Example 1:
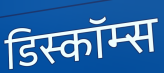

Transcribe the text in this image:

डिस्कॉम्स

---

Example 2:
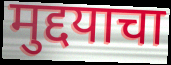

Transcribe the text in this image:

मुद्दयाचा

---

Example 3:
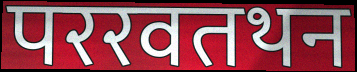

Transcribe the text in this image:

पररवतथन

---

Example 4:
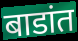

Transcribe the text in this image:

बाडांत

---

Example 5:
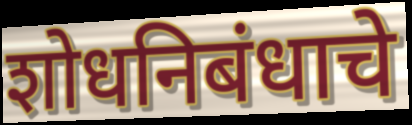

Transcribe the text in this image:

शोधनिबंधाचे